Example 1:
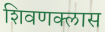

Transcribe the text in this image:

शिवणक्लास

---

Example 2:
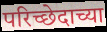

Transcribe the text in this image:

परिच्छेदाच्या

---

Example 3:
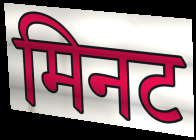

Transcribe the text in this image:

मिनट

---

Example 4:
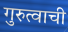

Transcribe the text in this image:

गुरुत्वाची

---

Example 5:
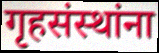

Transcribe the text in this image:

गृहसंस्थांना